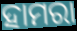
ହାମରା